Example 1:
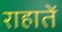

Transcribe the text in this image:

राहातें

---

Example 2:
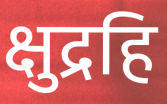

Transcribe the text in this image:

क्षुद्रहि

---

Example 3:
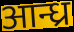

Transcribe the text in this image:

आन्ध्र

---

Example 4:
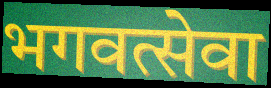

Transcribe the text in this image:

भगवत्सेवा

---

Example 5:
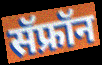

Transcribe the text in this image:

सॅफ्रॉन